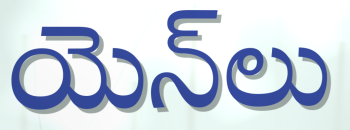
యెన్‌లు